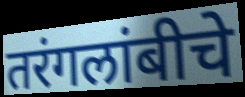
तरंगलांबीचे